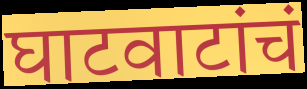
घाटवाटांचं